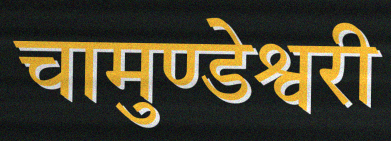
चामुण्डेश्वरी